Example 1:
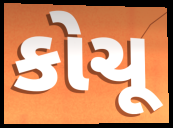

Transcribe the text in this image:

કોચૂ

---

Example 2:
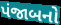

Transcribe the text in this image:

પંજાબનો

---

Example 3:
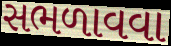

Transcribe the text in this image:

સભળાવવા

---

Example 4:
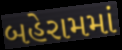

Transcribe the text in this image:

બહેરામમાં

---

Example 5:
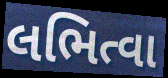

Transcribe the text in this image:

લભિત્વા